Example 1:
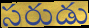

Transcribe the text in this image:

సరుడు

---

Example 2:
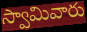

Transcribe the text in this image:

స్వామివారు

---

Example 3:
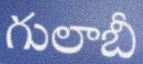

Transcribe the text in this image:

గులాబీ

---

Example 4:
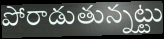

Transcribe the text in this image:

పోరాడుతున్నట్టు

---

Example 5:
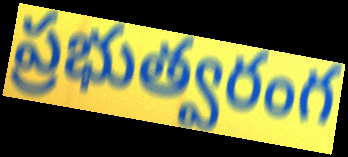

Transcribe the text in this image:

ప్రభుత్వరంగ